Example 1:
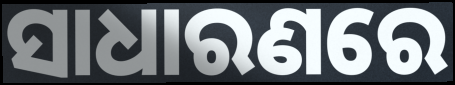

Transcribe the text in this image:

ସାଧାରଣରେ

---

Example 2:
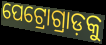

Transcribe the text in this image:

ପେଟ୍ରୋଗ୍ରାଡ଼କୁ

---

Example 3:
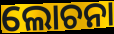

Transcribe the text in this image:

ଲୋଚନା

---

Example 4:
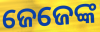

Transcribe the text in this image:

ଜେଜେଙ୍କ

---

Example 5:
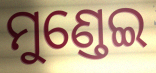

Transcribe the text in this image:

ମୁଣ୍ଡେଇ